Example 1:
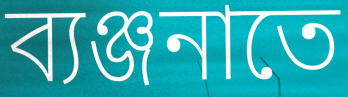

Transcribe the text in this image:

ব্যঞ্জনাতে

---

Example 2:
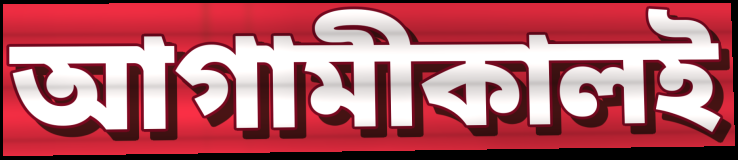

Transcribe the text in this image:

আগামীকালই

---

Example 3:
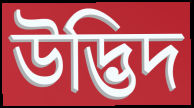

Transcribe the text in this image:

উদ্ভিদ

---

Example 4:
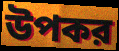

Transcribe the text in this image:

উপকর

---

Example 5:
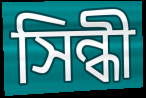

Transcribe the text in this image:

সিন্ধী